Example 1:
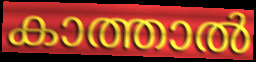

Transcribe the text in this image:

കാത്താൽ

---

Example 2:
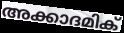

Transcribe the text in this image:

അക്കാദമിക്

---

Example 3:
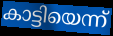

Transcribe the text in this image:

കാട്ടിയെന്ന്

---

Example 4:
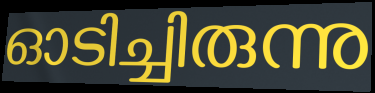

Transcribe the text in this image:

ഓടിച്ചിരുന്നു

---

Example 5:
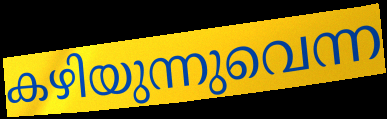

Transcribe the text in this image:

കഴിയുന്നുവെന്ന